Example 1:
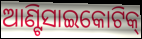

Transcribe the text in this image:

ଆଣ୍ଟିସାଇକୋଟିକ୍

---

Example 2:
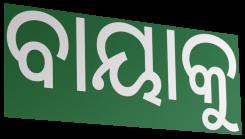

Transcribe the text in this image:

ବାୟାକୁ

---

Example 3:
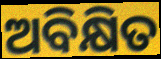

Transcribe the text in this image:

ଅବିକ୍ଷିତ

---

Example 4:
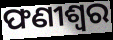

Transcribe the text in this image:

ଫଣୀଶ୍ୱର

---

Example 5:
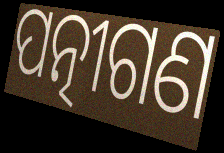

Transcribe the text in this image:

ପତ୍ନୀଗଣ